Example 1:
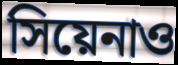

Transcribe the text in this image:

সিয়েনাও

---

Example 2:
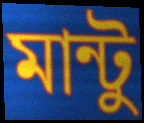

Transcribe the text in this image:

মান্টু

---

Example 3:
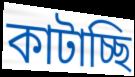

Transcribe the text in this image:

কাটাচ্ছি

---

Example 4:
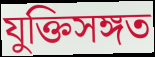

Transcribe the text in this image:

যুক্তিসঙ্গত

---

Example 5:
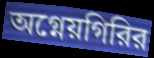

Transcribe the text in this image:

অগ্নেয়গিরির